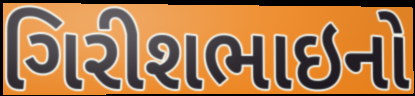
ગિરીશભાઇનો